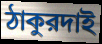
ঠাকুরদাই